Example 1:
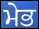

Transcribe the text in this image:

ਮੇਭ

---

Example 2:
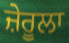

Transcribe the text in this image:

ਜ਼ੇਰੂਲਾ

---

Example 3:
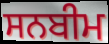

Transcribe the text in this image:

ਸਨਬੀਮ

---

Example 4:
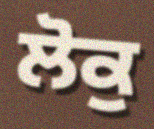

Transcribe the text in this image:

ਲੋਕੁ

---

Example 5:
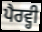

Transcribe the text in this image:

ਪੈਰਵ੍ਹੀ